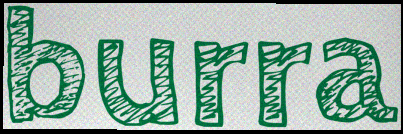
burra